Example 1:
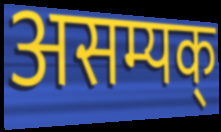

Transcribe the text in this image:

असम्यक्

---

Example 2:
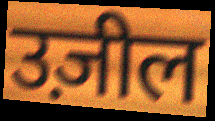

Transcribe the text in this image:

उज़ील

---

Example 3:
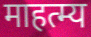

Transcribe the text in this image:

माहत्म्य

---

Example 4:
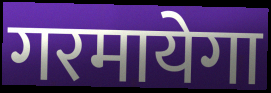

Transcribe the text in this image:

गरमायेगा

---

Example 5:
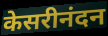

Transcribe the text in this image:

केसरीनंदन